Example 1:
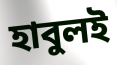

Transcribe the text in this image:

হাবুলই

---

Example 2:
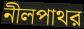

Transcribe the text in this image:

নীলপাথর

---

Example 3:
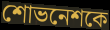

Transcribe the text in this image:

শোভনেশকে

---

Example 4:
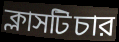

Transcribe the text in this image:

ক্লাসটিচার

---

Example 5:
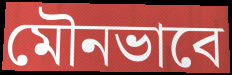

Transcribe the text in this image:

মৌনভাবে